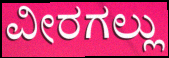
ವೀರಗಲ್ಲು